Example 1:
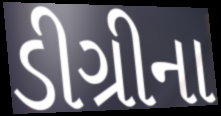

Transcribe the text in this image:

ડીગ્રીના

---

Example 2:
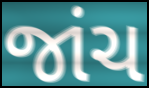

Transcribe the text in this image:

જાંચ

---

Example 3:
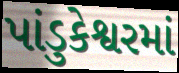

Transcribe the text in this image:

પાંડુકેશ્વરમાં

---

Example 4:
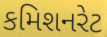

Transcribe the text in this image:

કમિશનરેટ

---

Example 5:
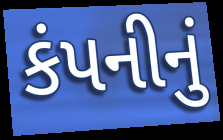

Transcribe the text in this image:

કંપનીનું